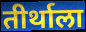
तीर्थाला